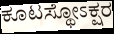
ಕೂಟಸ್ಥೋಽಕ್ಷರ